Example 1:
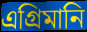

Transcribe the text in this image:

এগ্রিমানি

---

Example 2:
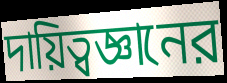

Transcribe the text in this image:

দায়িত্বজ্ঞানের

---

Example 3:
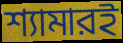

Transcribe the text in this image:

শ্যামারই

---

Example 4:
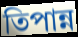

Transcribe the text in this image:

তিপান্ন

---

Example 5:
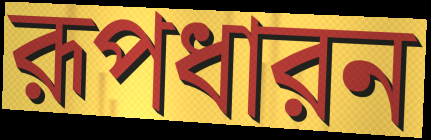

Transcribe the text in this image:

রূপধারন